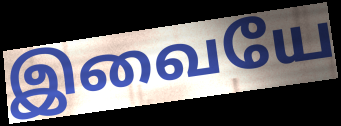
இவையே